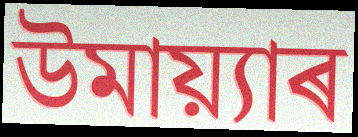
উমায়্যাৰ